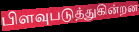
பிளவுபடுத்துகின்றன